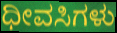
ಧೀವಸಿಗಳು